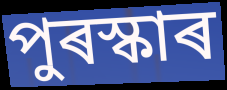
পুৰস্কাৰ